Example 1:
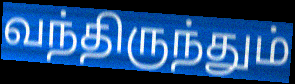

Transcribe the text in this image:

வந்திருந்தும்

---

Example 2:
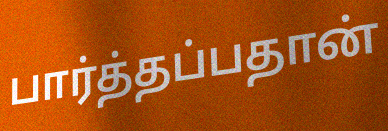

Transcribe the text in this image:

பார்த்தப்பதான்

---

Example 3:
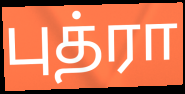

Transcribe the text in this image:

புத்ரா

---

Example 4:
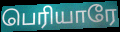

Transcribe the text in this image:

பெரியாரே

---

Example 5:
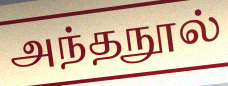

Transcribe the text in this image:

அந்தநூல்